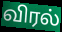
விரல்